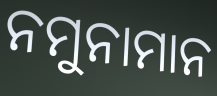
ନମୁନାମାନ